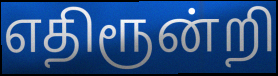
எதிரூன்றி